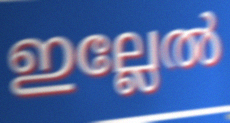
ഇല്ലേൽ